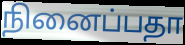
நினைப்பதா